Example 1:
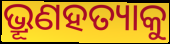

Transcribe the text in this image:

ଭ୍ରୂଣହତ୍ୟାକୁ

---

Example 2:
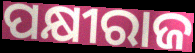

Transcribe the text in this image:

ପକ୍ଷୀରାଜ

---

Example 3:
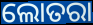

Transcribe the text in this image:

ଲୋତରା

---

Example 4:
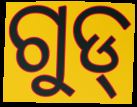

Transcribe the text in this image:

ଗୁଡ୍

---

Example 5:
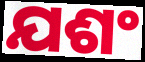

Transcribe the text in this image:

ଯଶଂ